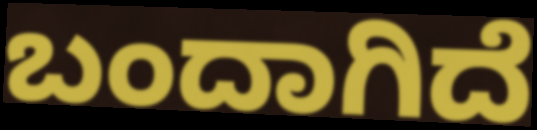
ಬಂದಾಗಿದೆ